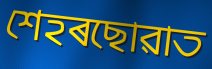
শেহৰছোৱাত